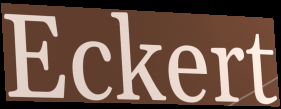
Eckert